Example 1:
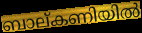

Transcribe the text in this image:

ബാല്കണിയിൽ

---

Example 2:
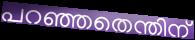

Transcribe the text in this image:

പറഞ്ഞതെന്തിന്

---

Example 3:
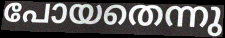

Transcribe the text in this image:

പോയതെന്നു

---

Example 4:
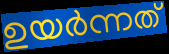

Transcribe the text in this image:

ഉയർന്നത്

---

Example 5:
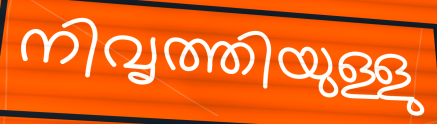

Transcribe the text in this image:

നിവൃത്തിയുള്ളു